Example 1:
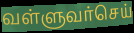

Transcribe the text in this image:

வள்ளுவர்செய்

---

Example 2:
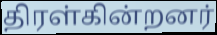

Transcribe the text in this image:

திரள்கின்றனர்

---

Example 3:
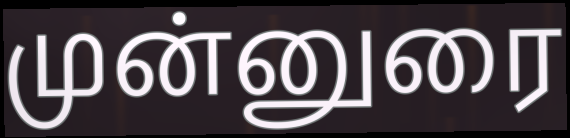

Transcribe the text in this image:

முன்னுரை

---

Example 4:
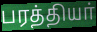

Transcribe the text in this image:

பரத்தியர்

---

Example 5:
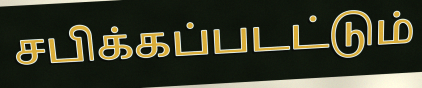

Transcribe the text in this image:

சபிக்கப்படட்டும்